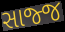
સાજ્જ